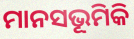
ମାନସଭୂମିକି